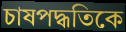
চাষপদ্ধতিকে